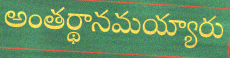
అంతర్థానమయ్యారు